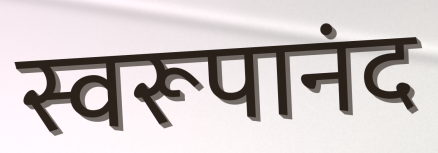
स्वरूपानंद